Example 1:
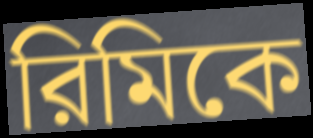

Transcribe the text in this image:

রিমিকে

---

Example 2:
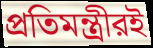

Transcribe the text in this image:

প্রতিমন্ত্রীরই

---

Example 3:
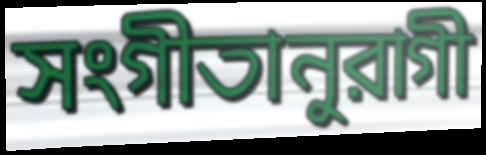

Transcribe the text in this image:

সংগীতানুরাগী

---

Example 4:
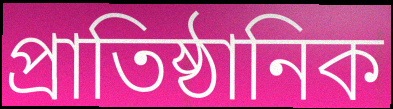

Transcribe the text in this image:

প্রাতিষ্ঠানিক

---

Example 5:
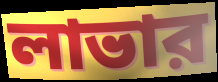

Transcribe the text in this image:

লাভার